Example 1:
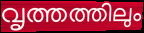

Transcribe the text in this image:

വൃത്തത്തിലും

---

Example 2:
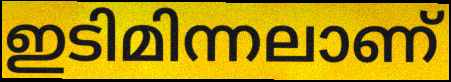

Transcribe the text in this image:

ഇടിമിന്നലാണ്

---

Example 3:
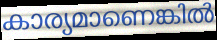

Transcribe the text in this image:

കാര്യമാണെങ്കിൽ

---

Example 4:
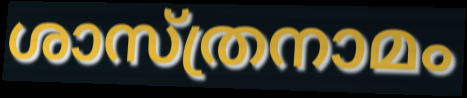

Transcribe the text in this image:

ശാസ്ത്രനാമം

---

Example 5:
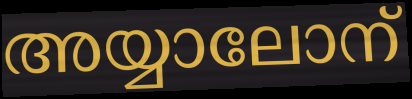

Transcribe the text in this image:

അയ്യാലോന്